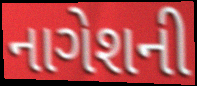
નાગેશની